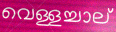
വെള്ളച്ചാല്